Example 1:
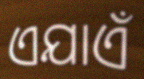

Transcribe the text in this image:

ଏଯାଏଁ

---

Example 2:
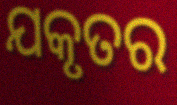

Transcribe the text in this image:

ଯକୃତର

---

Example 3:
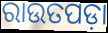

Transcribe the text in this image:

ରାଉତପଡ଼ା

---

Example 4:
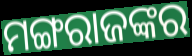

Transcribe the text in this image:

ମଙ୍ଗରାଜଙ୍କର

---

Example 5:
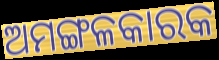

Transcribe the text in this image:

ଅମଙ୍ଗଳକାରକ